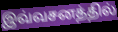
இவ்வசனத்தில்